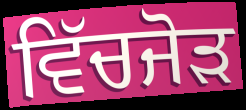
ਵਿੱਚਜੋੜ